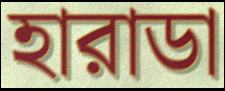
হারাডা